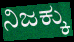
ನಿಜಕ್ಕು